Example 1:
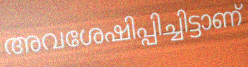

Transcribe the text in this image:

അവശേഷിപ്പിച്ചിട്ടാണ്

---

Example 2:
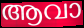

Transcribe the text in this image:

ആവാ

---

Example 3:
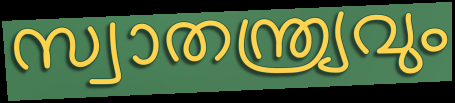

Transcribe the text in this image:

സ്വാതന്ത്ര്യവും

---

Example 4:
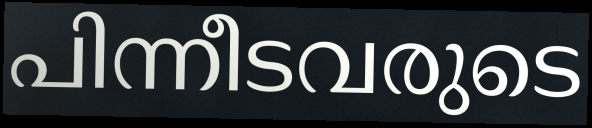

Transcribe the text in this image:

പിന്നീടവരുടെ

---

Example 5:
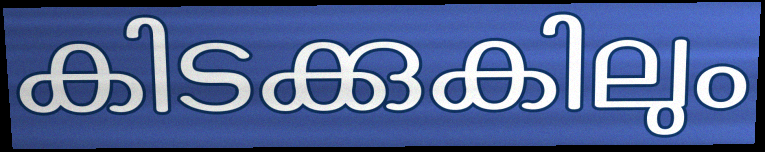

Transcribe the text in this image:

കിടക്കുകിലും